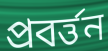
প্রবর্ত্তন